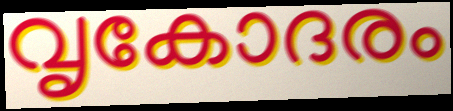
വൃകോദരം